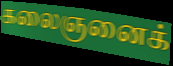
கலைஞனைக்